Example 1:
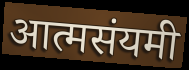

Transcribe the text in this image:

आत्मसंयमी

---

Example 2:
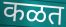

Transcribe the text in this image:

कळत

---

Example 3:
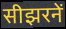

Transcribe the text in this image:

सीझरनें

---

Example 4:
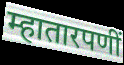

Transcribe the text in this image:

म्हातारपणीं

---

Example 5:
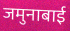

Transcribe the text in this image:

जमुनाबाई